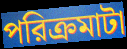
পরিক্রমাটা